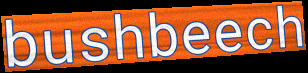
bushbeech